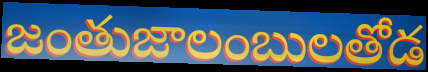
జంతుజాలంబులతోడ